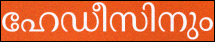
ഹേഡീസിനും